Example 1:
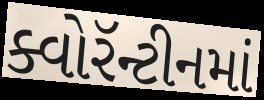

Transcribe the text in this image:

ક્વોરૅન્ટીનમાં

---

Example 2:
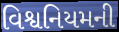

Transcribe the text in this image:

વિશ્વનિયમની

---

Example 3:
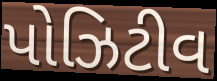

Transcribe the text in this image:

પોઝિટીવ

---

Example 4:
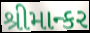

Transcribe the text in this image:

શ્રીમાન્કર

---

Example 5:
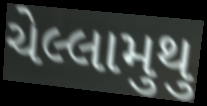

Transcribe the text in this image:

ચેલ્લામુથુ